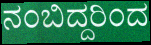
ನಂಬಿದ್ದರಿಂದ